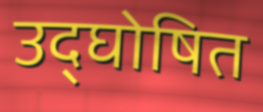
उद्घोषित